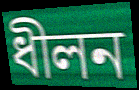
ধীলন